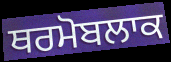
ਥਰਮੋਬਲਾਕ